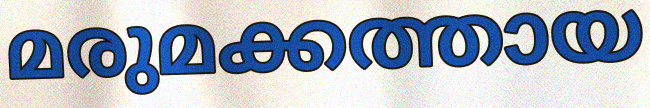
മരുമക്കത്തായ